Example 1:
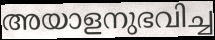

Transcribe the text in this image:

അയാളനുഭവിച്ച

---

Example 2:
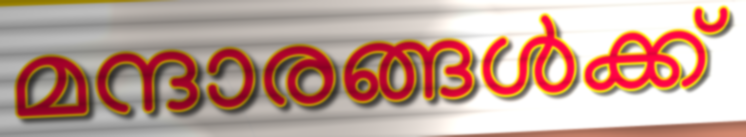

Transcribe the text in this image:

മന്ദാരങ്ങൾക്ക്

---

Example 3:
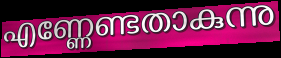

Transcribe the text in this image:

എണ്ണേണ്ടതാകുന്നു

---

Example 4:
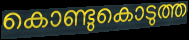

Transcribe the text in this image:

കൊണ്ടുകൊടുത്ത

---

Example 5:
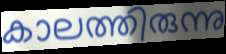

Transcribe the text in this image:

കാലത്തിരുന്നു